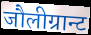
जौलीग्रान्ट